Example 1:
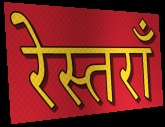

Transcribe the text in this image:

रेस्तराँ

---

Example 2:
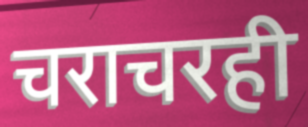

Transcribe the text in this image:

चराचरही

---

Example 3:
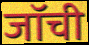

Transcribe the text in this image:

जॉची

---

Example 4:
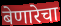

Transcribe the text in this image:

बेणारेचा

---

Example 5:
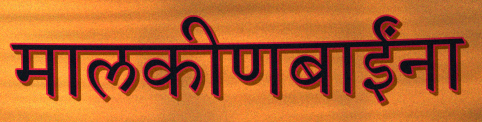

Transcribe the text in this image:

मालकीणबाईंना